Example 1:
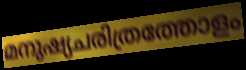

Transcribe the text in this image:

മനുഷ്യചരിത്രത്തോളം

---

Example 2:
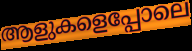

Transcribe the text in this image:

ആളുകളെപ്പോലെ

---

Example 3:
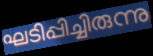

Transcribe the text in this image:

ഘടിപ്പിച്ചിരുന്നു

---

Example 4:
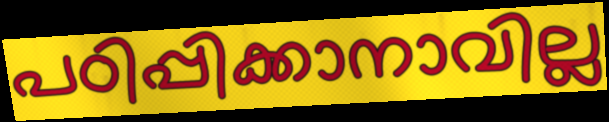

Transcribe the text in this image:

പഠിപ്പിക്കാനാവില്ല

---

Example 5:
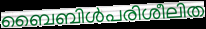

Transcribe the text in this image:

ബൈബിൾപരിശീലിത